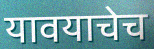
यावयाचेच